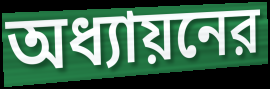
অধ্যায়নের